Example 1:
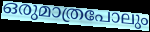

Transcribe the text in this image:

ഒരുമാത്രപോലും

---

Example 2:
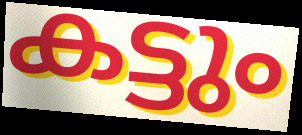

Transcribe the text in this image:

കട്ടും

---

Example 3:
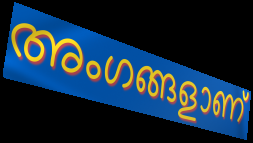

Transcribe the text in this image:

അംഗങ്ങളാണ്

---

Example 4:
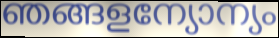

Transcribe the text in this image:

ഞങ്ങളന്യോന്യം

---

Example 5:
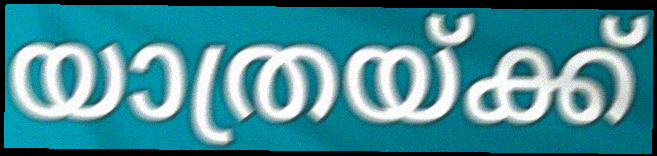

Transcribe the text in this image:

യാത്രയ്ക്ക്